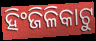
ହିଂଜିଳିକାଟୁ